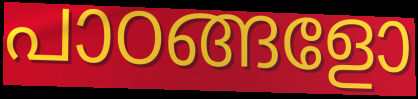
പാഠങ്ങളോ